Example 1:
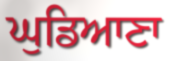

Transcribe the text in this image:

ਘੁਡਿਆਣਾ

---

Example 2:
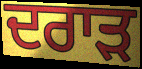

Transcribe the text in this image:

ਦਰਾੜ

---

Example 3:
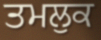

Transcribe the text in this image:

ਤਮਲੁਕ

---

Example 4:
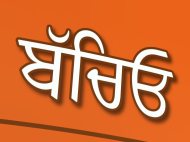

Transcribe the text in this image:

ਬੱਚਿਓ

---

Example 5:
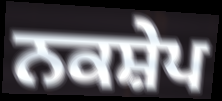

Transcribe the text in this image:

ਨਕਸ਼ੇਪ